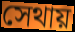
সেথায়